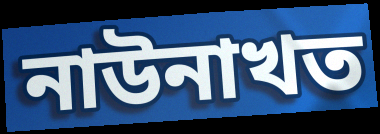
নাউনাখত